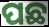
ପଛ